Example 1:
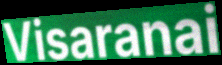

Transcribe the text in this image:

Visaranai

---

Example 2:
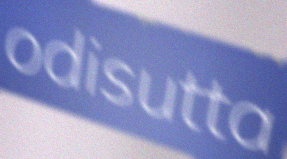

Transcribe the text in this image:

odisutta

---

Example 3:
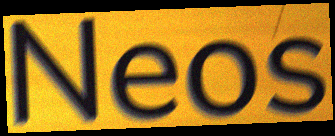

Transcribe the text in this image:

Neos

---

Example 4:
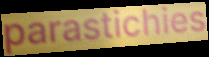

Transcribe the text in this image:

parastichies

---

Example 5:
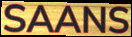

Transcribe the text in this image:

SAANS